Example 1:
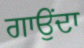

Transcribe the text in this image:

ਗਾਉਂਦਾ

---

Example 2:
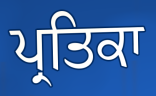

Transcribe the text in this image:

ਪ੍ਰਤਿਕਾ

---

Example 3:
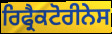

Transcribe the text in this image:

ਰਿਫ੍ਰੈਕਟੋਰੀਨੇਸ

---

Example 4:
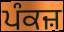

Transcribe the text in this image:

ਪੰਕਜ਼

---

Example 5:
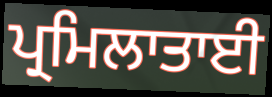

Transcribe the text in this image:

ਪ੍ਰਮਿਲਾਤਾਈ